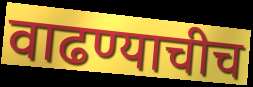
वाढण्याचीच